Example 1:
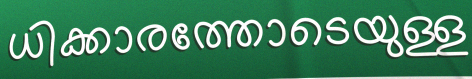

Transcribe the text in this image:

ധിക്കാരത്തോടെയുള്ള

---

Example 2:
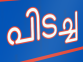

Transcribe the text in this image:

പിടച്ച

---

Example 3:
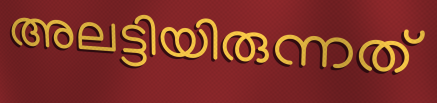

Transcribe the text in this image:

അലട്ടിയിരുന്നത്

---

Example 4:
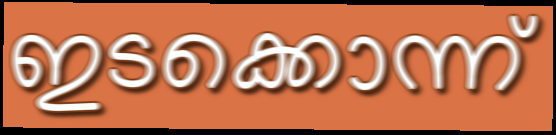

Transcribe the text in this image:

ഇടക്കൊന്ന്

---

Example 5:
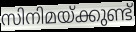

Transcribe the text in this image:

സിനിമയ്ക്കുണ്ട്